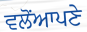
ਵਲੋਂਆਪਣੇ